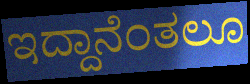
ಇದ್ದಾನೆಂತಲೂ